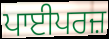
ਪਾਈਪਰਜ਼